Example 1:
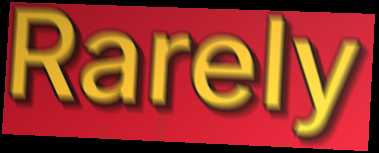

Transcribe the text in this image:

Rarely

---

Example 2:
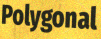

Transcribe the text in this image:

Polygonal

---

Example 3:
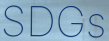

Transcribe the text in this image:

SDGs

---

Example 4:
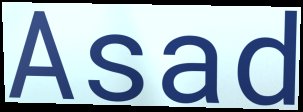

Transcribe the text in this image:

Asad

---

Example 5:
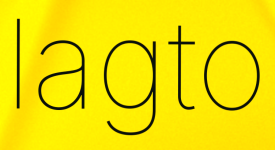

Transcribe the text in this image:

lagto